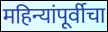
महिन्यांपूर्वीचा